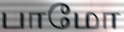
பாமோ